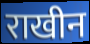
राखीन